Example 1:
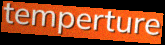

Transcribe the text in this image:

temperture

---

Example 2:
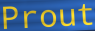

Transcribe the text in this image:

Prout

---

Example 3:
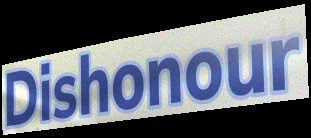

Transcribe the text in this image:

Dishonour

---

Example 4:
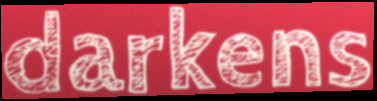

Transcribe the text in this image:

darkens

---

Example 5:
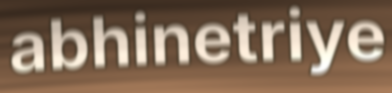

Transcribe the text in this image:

abhinetriye